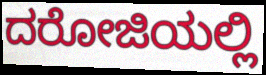
ದರೋಜಿಯಲ್ಲಿ